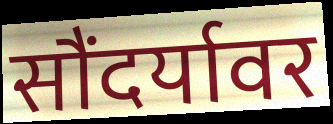
सौंदर्यावर